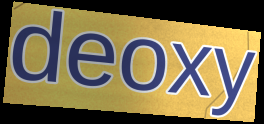
deoxy